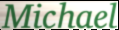
Michael